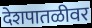
देशपातळीवर